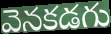
వెనకడగు